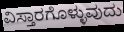
ವಿಸ್ತಾರಗೊಳ್ಳುವುದು